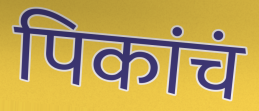
पिकांचं